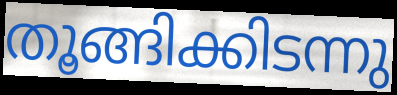
തൂങ്ങിക്കിടന്നു